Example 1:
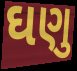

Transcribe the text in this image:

ઘણુ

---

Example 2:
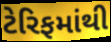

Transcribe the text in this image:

ટેરિફમાંથી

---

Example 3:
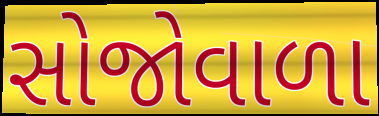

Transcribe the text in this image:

સોજોવાળા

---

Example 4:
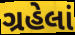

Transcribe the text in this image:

ગ્રહેલાં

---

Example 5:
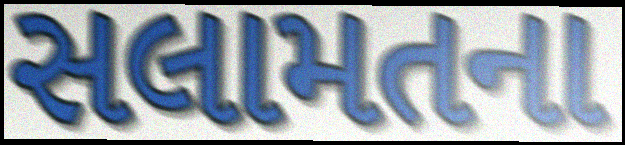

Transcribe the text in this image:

સલામતના